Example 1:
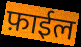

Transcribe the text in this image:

फ़ाईल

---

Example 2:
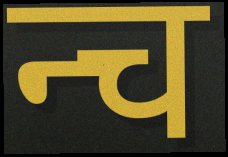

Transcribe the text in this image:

न्च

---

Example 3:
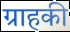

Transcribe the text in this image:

ग्राहकी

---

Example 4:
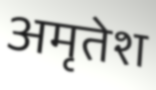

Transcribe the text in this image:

अमृतेश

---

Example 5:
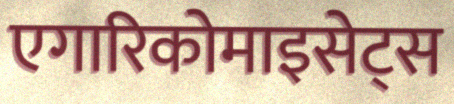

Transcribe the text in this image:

एगारिकोमाइसेट्स